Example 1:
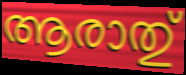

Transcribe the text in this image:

ആരാതു്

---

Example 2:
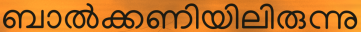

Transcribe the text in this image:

ബാൽക്കണിയിലിരുന്നു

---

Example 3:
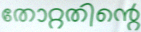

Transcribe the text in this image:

തോറ്റതിന്റെ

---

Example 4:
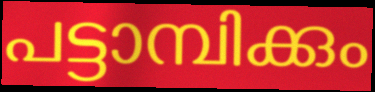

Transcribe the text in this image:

പട്ടാമ്പിക്കും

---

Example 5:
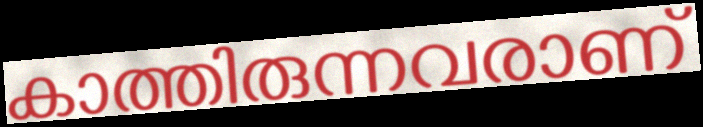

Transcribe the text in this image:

കാത്തിരുന്നവരാണ്